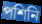
পশিনি